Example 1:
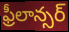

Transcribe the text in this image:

ఫ్రీలాన్సర్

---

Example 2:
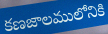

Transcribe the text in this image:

కణజాలములోనికి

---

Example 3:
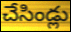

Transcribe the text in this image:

చేసిండ్లు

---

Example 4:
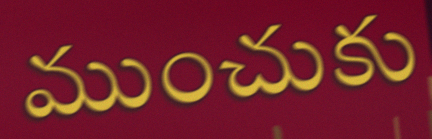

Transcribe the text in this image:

ముంచుకు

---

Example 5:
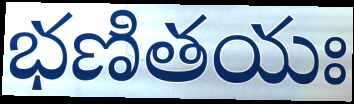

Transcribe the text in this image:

భణితయః